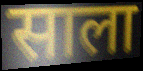
साला